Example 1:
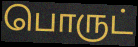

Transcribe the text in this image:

பொருட்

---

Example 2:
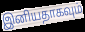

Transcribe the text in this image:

இனியதாகவும்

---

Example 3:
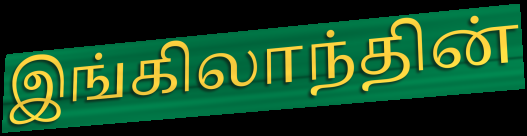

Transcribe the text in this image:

இங்கிலாந்தின்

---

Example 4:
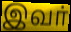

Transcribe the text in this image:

இவர்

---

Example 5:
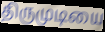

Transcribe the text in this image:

திருமுடியை